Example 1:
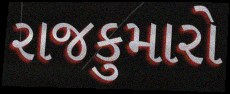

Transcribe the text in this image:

રાજકુમારો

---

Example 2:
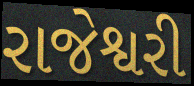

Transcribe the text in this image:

રાજેશ્વરી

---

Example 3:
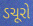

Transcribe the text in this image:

ડચૂરો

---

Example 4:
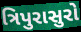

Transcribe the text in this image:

ત્રિપુરાસુરો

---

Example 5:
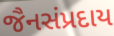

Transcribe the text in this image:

જૈનસંપ્રદાય